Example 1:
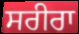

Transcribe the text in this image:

ਸਰੀਰਾ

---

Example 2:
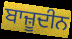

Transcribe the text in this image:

ਬਾਜ਼ੂਦੀਨ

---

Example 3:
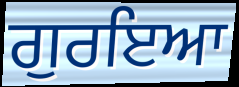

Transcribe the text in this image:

ਗੁਰਇਆ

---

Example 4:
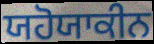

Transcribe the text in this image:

ਯਹੋਯਾਕੀਨ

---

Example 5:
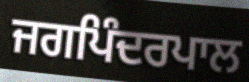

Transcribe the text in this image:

ਜਗਪਿੰਦਰਪਾਲ